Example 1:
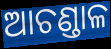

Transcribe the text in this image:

ଆଚଣ୍ଡାଳ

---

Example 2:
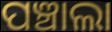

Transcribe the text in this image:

ପଞ୍ଚାଲା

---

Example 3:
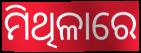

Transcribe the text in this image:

ମିଥିଳାରେ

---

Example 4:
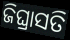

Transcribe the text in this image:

ଜିଘ୍ରାସତି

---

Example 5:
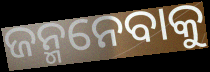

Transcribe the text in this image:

ଜନ୍ମନେବାକୁ